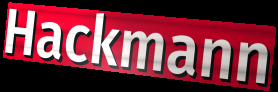
Hackmann